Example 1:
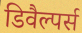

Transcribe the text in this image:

डिवैल्पर्स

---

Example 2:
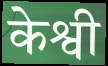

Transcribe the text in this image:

केश्वी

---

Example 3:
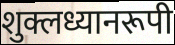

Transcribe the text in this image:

शुक्लध्यानरूपी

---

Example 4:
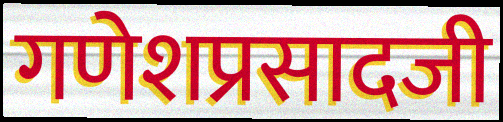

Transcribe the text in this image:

गणेशप्रसादजी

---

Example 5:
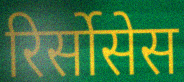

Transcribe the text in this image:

रिर्सोसेस